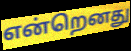
என்றெனது